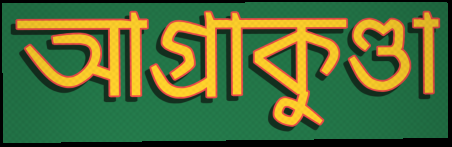
আগ্রাকুণ্ডা